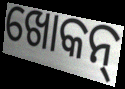
ଖୋକନ୍